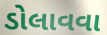
ડોલાવવા